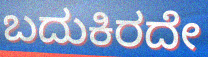
ಬದುಕಿರದೇ